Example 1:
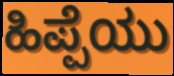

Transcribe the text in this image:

ಹಿಪ್ಪೆಯು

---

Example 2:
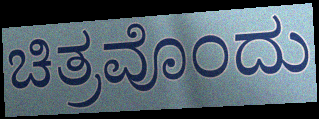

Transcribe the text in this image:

ಚಿತ್ರವೊಂದು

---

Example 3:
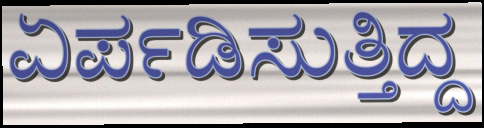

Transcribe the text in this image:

ಏರ್ಪಡಿಸುತ್ತಿದ್ದ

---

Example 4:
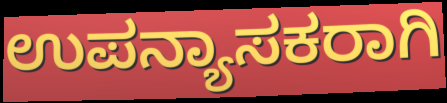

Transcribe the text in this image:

ಉಪನ್ಯಾಸಕರಾಗಿ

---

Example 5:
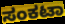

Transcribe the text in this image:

ಸಂಕಟಾ